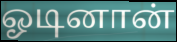
ஓடினான்